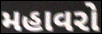
મહાવરો